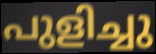
പുളിച്ചു